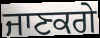
ਜਾਣਕਗੇ